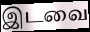
இடவை